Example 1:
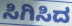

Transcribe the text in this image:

ಸಿಗಿಸಿದ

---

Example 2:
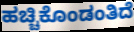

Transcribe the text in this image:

ಹಚ್ಚಿಕೊಂಡಂತಿದೆ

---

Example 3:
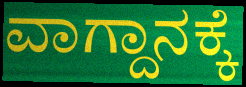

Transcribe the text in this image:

ವಾಗ್ದಾನಕ್ಕೆ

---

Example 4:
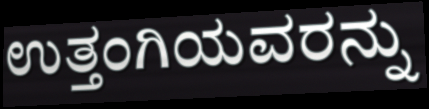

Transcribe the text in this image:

ಉತ್ತಂಗಿಯವರನ್ನು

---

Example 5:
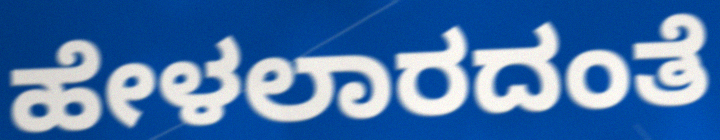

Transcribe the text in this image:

ಹೇಳಲಾರದಂತೆ